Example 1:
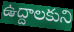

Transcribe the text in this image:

ఉద్దాలకుని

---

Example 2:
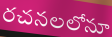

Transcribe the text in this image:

రచనలలోనూ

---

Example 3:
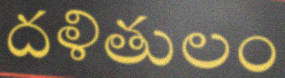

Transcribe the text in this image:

దళితులం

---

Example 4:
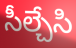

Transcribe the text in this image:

సీల్చేసి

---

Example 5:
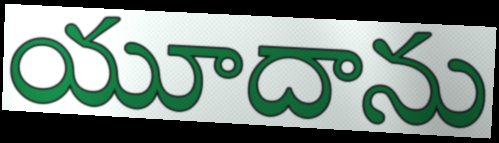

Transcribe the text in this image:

యూదాను